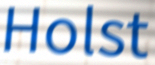
Holst